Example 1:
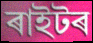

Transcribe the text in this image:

ৰাইটৰ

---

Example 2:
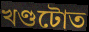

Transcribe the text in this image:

খণ্ডটোত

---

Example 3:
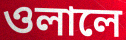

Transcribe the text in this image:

ওলালে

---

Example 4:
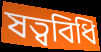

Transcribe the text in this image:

ষত্ববিধি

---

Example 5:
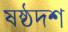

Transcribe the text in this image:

ষষ্ঠদশ